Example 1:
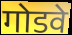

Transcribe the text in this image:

गोडवे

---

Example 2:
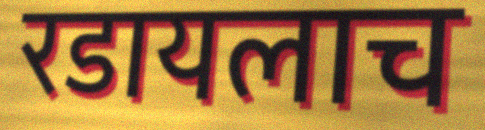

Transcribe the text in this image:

रडायलाच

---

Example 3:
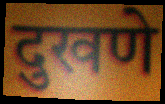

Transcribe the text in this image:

दुखणे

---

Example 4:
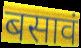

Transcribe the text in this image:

बसावं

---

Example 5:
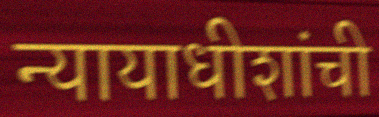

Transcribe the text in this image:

न्यायाधीशांची